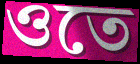
ওতে